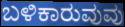
ಬಳಿಕಾರುವುವು